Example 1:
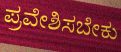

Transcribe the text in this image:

ಪ್ರವೇಶಿಸಬೇಕು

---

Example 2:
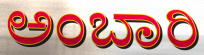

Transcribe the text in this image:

ಅಂಬಾರಿ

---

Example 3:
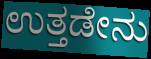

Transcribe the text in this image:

ಉತ್ತಡೇನು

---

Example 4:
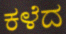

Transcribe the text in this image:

ಕಳೆದ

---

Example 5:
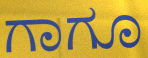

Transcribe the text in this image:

ಗಾಗೂ